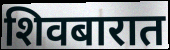
शिवबारात